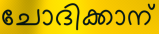
ചോദിക്കാന്